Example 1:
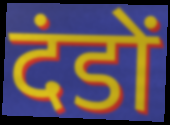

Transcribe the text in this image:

दंडों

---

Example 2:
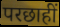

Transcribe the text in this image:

परछाहीं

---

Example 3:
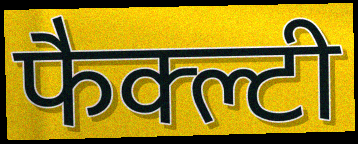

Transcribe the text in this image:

फैक्ल्टी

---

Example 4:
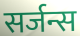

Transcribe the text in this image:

सर्जन्स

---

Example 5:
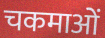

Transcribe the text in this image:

चकमाओं